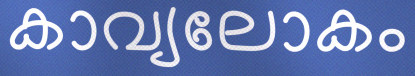
കാവ്യലോകം